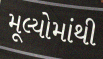
મૂલ્યોમાંથી